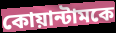
কোয়ান্টামকে